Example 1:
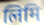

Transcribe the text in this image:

लिमि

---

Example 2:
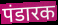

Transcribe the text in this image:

पंडारक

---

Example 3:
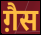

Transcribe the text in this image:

ग़ैस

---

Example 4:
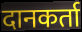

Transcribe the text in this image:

दानकर्ता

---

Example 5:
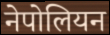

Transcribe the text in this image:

नेपोलियन